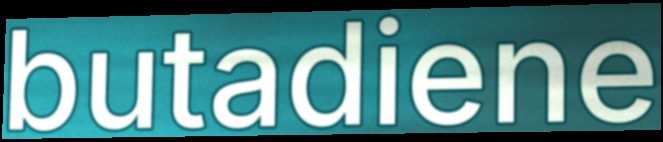
butadiene